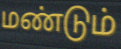
மண்டும்